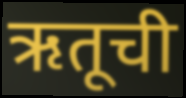
ॠतूची